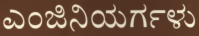
ಎಂಜಿನಿಯರ್ಗಳು